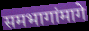
समभागांमागे